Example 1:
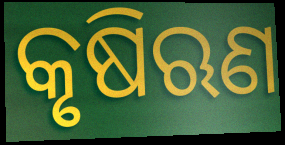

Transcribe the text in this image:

କୃଷିଋଣ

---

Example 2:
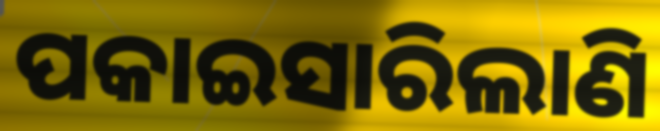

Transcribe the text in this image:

ପକାଇସାରିଲାଣି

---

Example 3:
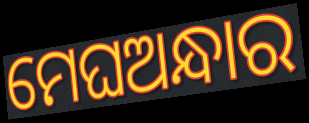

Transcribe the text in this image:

ମେଘଅନ୍ଧାର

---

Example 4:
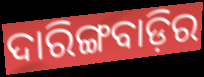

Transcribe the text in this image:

ଦାରିଙ୍ଗବାଡ଼ିର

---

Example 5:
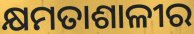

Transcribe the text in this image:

କ୍ଷମତାଶାଳୀର